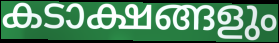
കടാക്ഷങ്ങളും